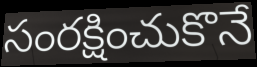
సంరక్షించుకొనే